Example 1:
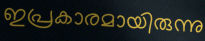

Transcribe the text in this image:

ഇപ്രകാരമായിരുന്നു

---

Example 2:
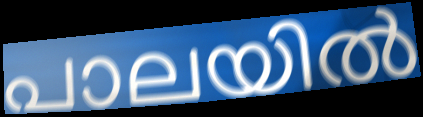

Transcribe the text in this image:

പാലയിൽ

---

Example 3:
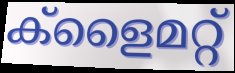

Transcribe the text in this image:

ക്ളൈമറ്റ്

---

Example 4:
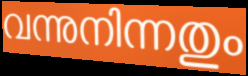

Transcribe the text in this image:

വന്നുനിന്നതും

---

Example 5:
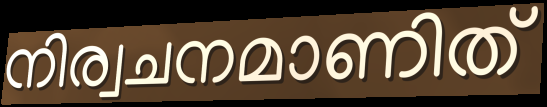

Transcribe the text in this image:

നിര്വചനമാണിത്